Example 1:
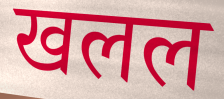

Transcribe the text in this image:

खलल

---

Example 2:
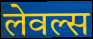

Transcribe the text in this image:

लेवल्स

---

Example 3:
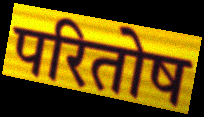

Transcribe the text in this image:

परितोष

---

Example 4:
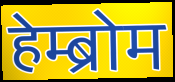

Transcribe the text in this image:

हेम्ब्रोम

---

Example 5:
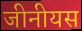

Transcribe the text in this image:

जीनीयस